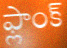
ఫ్లాంక్